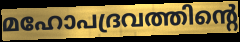
മഹോപദ്രവത്തിന്റെ